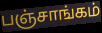
பஞ்சாங்கம்